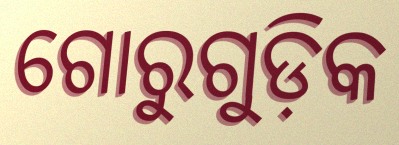
ଗୋରୁଗୁଡ଼ିକ